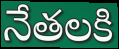
నేతలకి